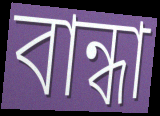
বান্ধা